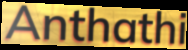
Anthathi